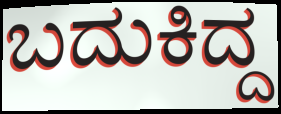
ಬದುಕಿದ್ದ